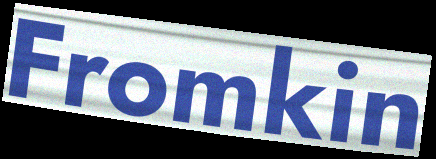
Fromkin